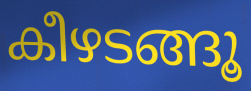
കീഴടങ്ങൂ